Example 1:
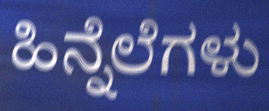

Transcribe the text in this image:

ಹಿನ್ನೆಲೆಗಳು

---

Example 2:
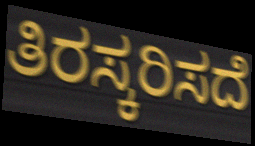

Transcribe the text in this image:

ತಿರಸ್ಕರಿಸದೆ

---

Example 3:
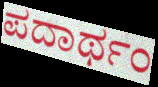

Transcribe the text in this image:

ಪದಾರ್ಥಂ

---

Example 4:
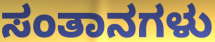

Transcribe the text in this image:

ಸಂತಾನಗಳು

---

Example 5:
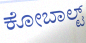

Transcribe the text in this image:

ಕೋಬಾಲ್ಟ್